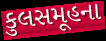
કુલસમૂહના